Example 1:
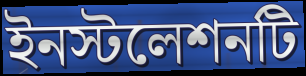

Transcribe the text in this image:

ইনস্টলেশনটি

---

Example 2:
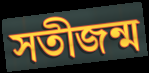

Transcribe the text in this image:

সতীজন্ম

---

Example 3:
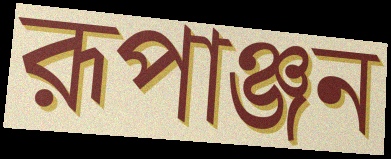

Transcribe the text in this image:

রূপাঞ্জন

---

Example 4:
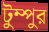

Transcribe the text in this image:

টুম্পুর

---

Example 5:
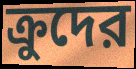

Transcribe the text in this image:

ক্রুদের